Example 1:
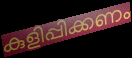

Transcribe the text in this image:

കുളിപ്പിക്കണം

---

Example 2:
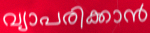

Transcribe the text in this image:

വ്യാപരിക്കാൻ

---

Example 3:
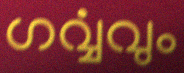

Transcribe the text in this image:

ഗൎവ്വവും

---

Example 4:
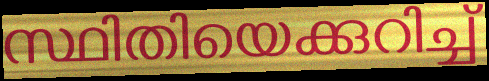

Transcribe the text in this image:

സ്ഥിതിയെക്കുറിച്ച്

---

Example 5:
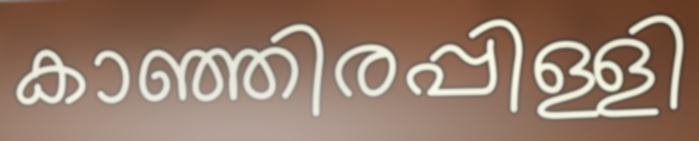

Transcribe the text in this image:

കാഞ്ഞിരപ്പിള്ളി